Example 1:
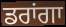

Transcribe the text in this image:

ਡਰਾਂਗਾ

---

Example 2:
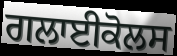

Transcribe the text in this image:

ਗਲਾਈਕੋਲਸ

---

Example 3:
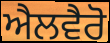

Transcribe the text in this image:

ਐਲਵੈਰੋ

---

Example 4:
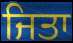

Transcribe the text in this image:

ਜਿਤਾ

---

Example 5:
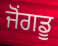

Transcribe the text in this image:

ਜੋਂਗਡੂ